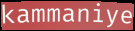
kammaniye